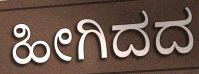
ಹೀಗಿದದ